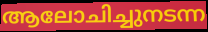
ആലോചിച്ചുനടന്ന